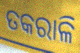
ତକରାଳି